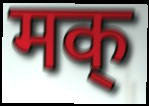
मक्